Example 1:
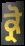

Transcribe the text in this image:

ਕ੍ਰੋ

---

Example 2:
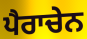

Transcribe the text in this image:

ਪੈਰਾਚੇਨ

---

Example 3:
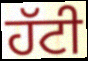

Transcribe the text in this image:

ਹੱਟੀ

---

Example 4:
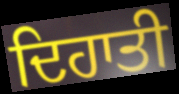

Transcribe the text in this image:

ਦਿਹਾਤੀ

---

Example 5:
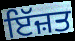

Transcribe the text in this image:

ਇੱਜ਼ਤ